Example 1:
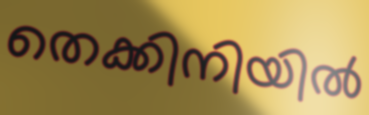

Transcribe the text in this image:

തെക്കിനിയിൽ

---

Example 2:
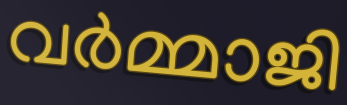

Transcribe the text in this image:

വർമ്മാജി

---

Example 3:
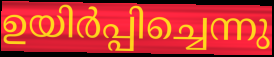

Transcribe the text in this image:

ഉയിർപ്പിച്ചെന്നു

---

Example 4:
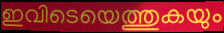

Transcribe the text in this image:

ഇവിടെയെത്തുകയും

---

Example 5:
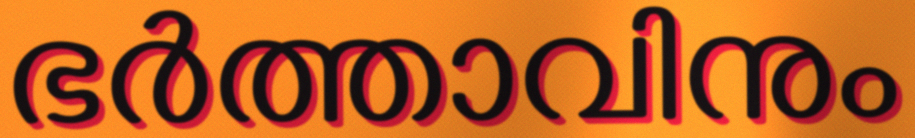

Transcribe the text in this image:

ഭർത്താവിനും